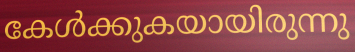
കേൾക്കുകയായിരുന്നു